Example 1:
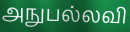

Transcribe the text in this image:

அநுபல்லவி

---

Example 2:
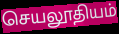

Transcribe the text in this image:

செயலூதியம்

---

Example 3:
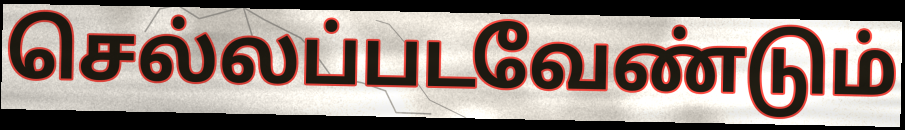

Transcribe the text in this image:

செல்லப்படவேண்டும்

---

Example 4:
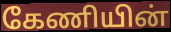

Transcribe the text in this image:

கேணியின்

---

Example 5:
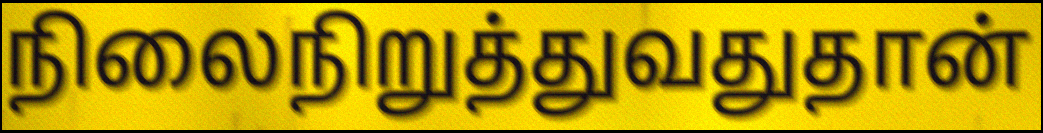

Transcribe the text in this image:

நிலைநிறுத்துவதுதான்